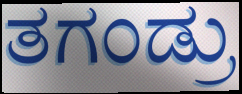
ತಗಂಡ್ರು